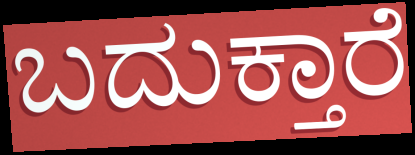
ಬದುಕ್ತಾರೆ